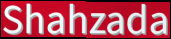
Shahzada